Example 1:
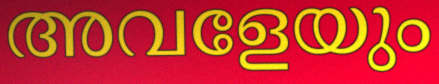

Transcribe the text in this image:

അവളേയും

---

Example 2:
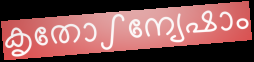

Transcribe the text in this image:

കൃതോഽന്യേഷാം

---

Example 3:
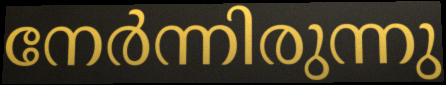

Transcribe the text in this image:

നേർന്നിരുന്നു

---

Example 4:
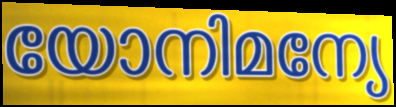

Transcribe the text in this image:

യോനിമന്യേ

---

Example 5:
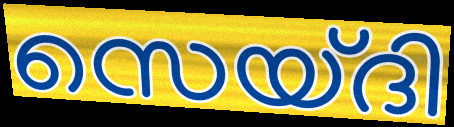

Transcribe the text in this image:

സെയ്ദി